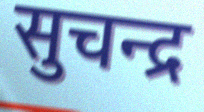
सुचन्द्र